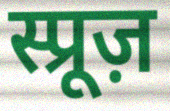
स्प्रूज़